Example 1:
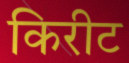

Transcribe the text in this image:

किरीट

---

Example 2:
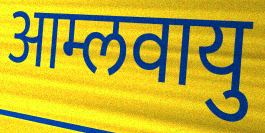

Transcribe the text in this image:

आम्लवायु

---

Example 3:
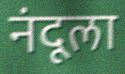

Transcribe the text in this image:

नंदूला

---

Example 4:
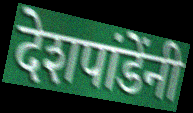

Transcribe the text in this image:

देशपांडेंनी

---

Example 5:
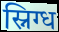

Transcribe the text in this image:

स्निग्ध